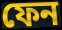
ফেন